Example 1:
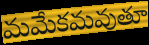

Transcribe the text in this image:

మమేకమవుతూ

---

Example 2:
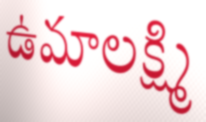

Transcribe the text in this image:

ఉమాలక్ష్మి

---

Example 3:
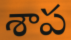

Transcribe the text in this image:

శాప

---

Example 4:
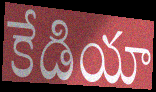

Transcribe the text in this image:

కేడియా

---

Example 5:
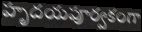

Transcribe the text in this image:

హృదయపూర్వకంగా